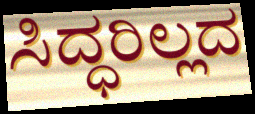
ಸಿದ್ಧರಿಲ್ಲದ